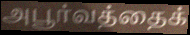
அபூர்வத்தைக்